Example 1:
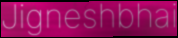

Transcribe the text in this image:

Jigneshbhai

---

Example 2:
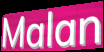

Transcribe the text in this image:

Malan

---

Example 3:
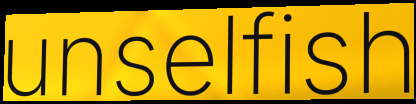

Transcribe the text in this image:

unselfish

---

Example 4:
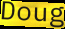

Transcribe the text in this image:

Doug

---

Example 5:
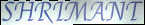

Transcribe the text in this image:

SHRIMANT